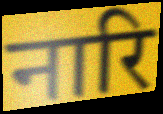
नारि